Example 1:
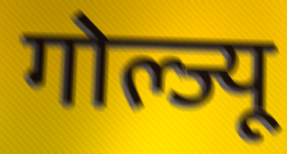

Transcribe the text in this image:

गोल्ज्यू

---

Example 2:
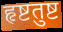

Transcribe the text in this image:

हृष्टतुष्ट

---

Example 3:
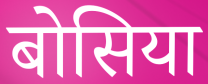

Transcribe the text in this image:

बोसिया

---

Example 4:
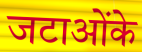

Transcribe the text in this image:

जटाओंके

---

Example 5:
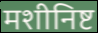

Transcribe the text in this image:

मशीनिष्ट